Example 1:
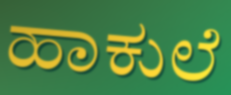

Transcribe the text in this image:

ಹಾಕುಲೆ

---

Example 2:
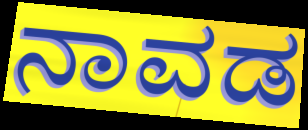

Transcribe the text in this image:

ನಾವಡ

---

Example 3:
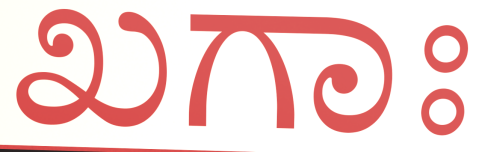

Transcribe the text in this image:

ಖಗಾಃ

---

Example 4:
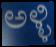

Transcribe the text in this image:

ಅಳ್ಳಿ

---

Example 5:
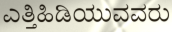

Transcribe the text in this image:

ಎತ್ತಿಹಿಡಿಯುವವರು